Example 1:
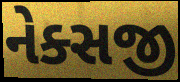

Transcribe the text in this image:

નેક્સજી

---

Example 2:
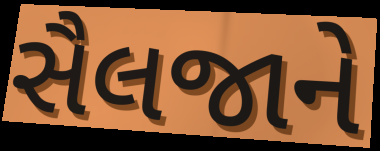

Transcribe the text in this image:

સૈલજાને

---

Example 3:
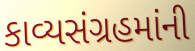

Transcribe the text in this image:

કાવ્યસંગ્રહમાંની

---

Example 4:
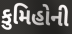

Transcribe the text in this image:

કુમિહોની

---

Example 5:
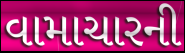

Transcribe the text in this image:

વામાચારની